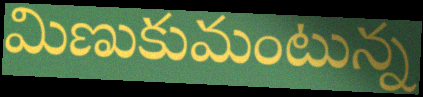
మిణుకుమంటున్న